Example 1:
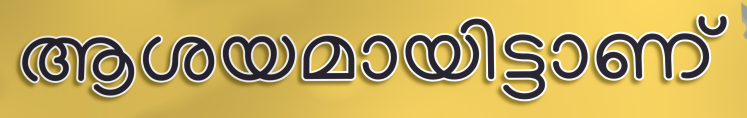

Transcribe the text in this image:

ആശയമായിട്ടാണ്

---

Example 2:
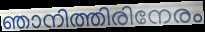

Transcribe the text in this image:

ഞാനിത്തിരിനേരം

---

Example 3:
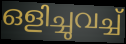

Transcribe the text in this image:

ഒളിച്ചുവച്ച്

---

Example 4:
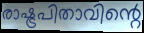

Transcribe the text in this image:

രാഷ്ട്രപിതാവിന്റെ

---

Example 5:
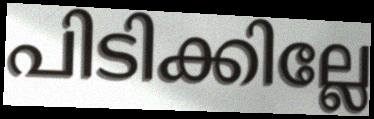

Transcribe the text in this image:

പിടിക്കില്ലേ